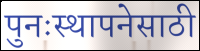
पुनःस्थापनेसाठी